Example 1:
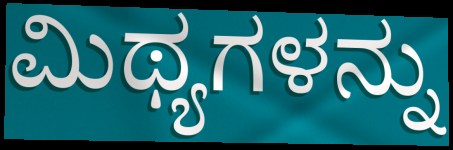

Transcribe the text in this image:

ಮಿಥ್ಯಗಳನ್ನು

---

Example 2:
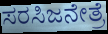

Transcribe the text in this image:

ಸರಸಿಜನೇತ್ರೆ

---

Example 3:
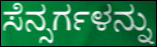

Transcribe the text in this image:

ಸೆನ್ಸರ್ಗಳನ್ನು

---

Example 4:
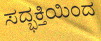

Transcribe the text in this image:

ಸದ್ಭಕ್ತಿಯಿಂದ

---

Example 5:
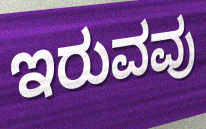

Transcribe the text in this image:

ಇರುವವು